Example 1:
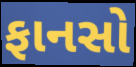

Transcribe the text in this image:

ફાનસો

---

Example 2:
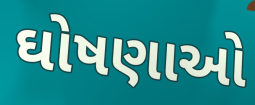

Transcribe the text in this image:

ઘોષણાઓ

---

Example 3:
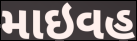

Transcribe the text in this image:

માઇવહ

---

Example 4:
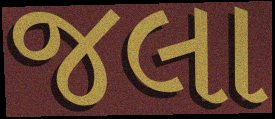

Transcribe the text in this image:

જલા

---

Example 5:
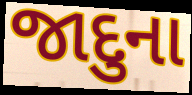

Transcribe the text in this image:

જાદુના